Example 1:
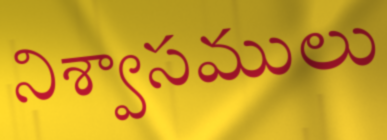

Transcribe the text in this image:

నిశ్వాసములు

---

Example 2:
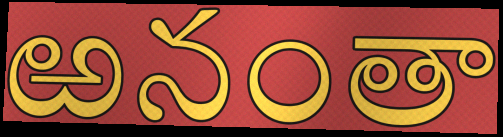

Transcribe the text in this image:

ఱనంతా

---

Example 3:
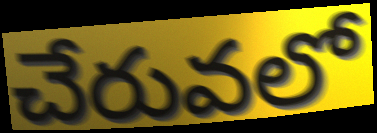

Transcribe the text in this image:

చేరువలో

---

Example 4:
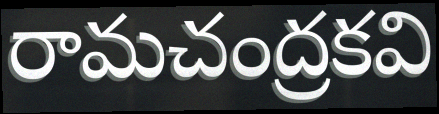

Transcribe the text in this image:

రామచంద్రకవి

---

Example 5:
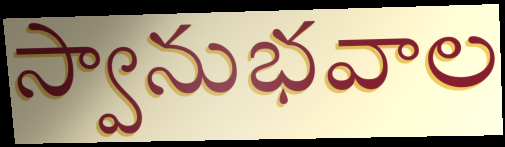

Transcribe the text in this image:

స్వానుభవాల